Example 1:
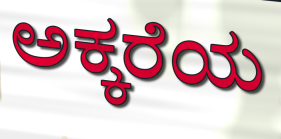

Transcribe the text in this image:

ಅಕ್ಕರೆಯ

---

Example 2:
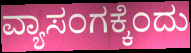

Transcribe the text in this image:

ವ್ಯಾಸಂಗಕ್ಕೆಂದು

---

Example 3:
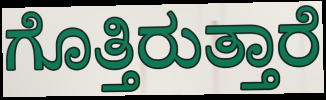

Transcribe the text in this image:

ಗೊತ್ತಿರುತ್ತಾರೆ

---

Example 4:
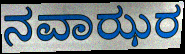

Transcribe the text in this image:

ನವಾಝರ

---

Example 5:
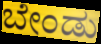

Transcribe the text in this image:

ಬೇಂಡು